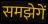
समझेगें